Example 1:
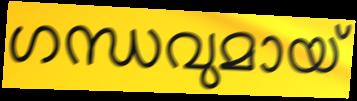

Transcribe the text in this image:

ഗന്ധവുമായ്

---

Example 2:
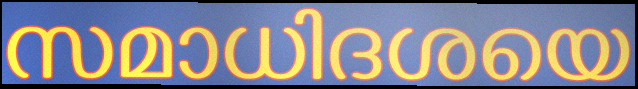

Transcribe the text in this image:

സമാധിദശയെ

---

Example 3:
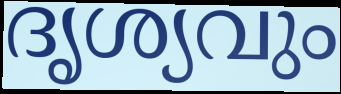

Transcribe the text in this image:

ദൃശ്യവും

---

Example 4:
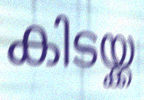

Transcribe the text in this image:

കിടയ്ക്ക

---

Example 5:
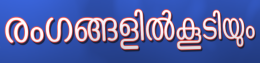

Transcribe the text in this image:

രംഗങ്ങളിൽകൂടിയും